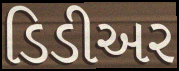
ડિડીઅર